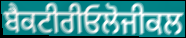
ਬੈਕਟੀਰੀਓਲੋਜੀਕਲ